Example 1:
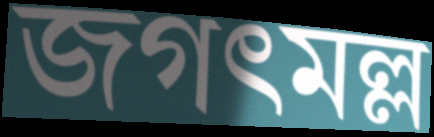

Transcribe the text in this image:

জগৎমল্ল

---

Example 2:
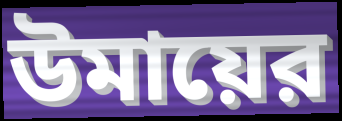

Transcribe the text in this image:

উমায়ের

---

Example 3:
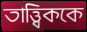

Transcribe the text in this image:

তাত্ত্বিককে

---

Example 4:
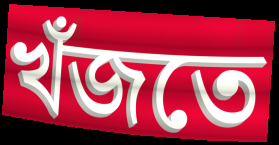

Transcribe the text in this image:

খঁজতে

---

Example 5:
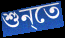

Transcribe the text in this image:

শুন্‌তে